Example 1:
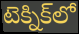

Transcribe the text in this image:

టెక్నిక్‌లో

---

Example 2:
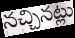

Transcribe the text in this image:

నచ్చినట్లు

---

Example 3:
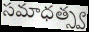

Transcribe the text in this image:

సమాధత్స్వ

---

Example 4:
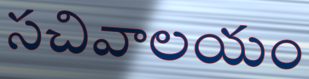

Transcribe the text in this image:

సచివాలయం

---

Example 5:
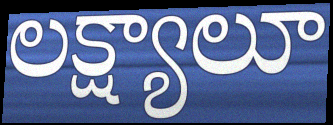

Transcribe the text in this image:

లక్ష్యాలూ